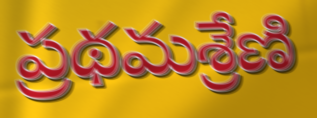
ప్రథమశ్రేణి